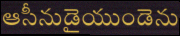
ఆసీనుడైయుండెను